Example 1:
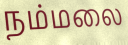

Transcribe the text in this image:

நம்மலை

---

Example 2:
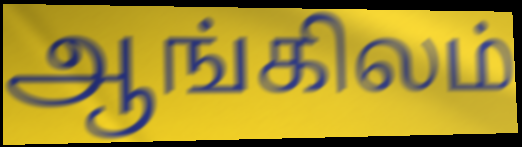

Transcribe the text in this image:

ஆங்கிலம்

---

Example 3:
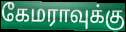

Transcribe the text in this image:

கேமராவுக்கு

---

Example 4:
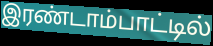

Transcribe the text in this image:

இரண்டாம்பாட்டில்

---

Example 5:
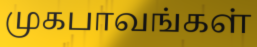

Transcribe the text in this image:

முகபாவங்கள்